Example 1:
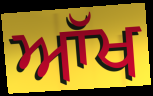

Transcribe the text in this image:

ਆੱਖ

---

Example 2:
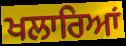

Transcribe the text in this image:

ਖਲਾਰਿਆਂ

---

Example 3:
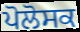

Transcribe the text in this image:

ਪੋਲੋਸਕ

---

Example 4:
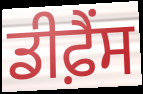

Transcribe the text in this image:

ਡੀਫ਼ੈਂਸ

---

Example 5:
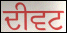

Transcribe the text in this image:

ਦੀਵਟ